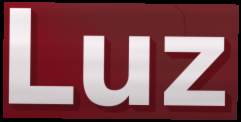
Luz